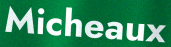
Micheaux